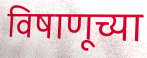
विषाणूच्या